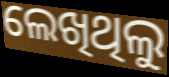
ଲେଖିଥିଲୁ